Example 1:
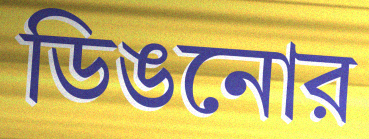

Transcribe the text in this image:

ডিঙনোর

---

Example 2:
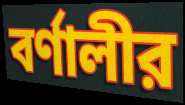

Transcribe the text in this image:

বর্ণালীর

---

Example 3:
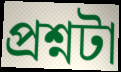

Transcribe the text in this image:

প্রশ্নটা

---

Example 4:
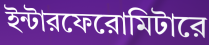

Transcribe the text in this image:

ইন্টারফেরোমিটারে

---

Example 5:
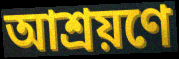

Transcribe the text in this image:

আশ্রয়ণে